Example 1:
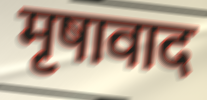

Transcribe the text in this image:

मृषावाद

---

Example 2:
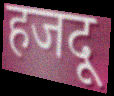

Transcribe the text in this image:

हजदू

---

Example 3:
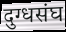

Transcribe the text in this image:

दुग्धसंघ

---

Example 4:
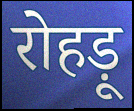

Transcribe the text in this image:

रोहड़ू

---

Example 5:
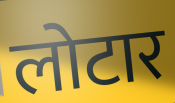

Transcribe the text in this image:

लोटार